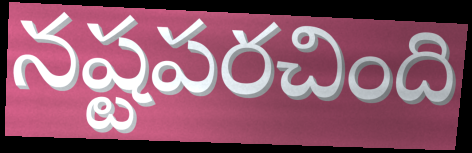
నష్టపరచింది